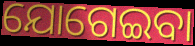
ଯୋଗେଇବା